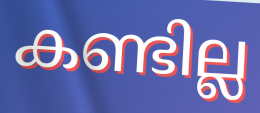
കണ്ടില്ല